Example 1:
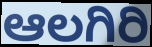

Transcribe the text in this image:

ಆಲಗಿರಿ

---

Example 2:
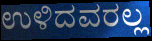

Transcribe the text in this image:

ಉಳಿದವರಲ್ಲ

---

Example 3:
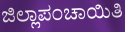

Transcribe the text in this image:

ಜಿಲ್ಲಾಪಂಚಾಯಿತಿ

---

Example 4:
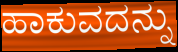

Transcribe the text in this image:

ಹಾಕುವದನ್ನು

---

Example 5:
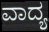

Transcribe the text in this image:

ವಾದ್ಯ